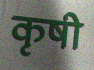
कृषी